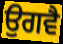
ਉਗਵੈ